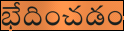
భేదించడం